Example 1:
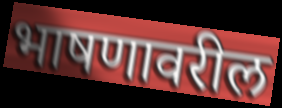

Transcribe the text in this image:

भाषणावरील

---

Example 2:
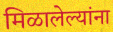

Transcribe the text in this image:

मिळालेल्यांना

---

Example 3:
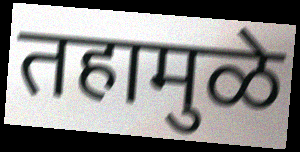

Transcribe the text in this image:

तहामुळे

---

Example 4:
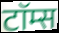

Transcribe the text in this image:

टॉम्स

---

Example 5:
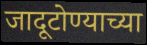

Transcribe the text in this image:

जादूटोण्याच्या